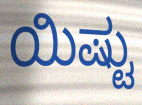
ಯಿಷ್ಟು